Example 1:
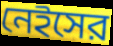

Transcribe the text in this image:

নেইসের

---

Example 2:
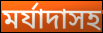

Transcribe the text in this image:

মর্যাদাসহ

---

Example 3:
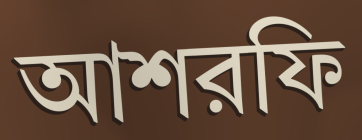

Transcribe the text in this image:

আশরফি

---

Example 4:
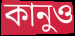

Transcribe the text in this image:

কানুও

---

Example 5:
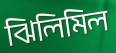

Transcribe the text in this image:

ঝিলিমিল